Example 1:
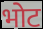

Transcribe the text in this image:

भोट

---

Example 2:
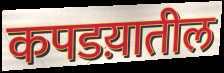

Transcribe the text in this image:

कपडय़ातील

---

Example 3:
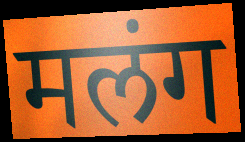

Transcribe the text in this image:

मलंग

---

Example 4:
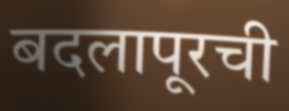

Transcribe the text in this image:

बदलापूरची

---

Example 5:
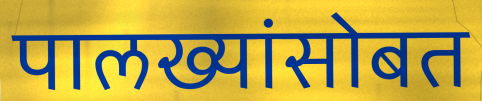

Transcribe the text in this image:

पालख्यांसोबत